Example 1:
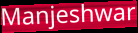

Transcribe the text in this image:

Manjeshwar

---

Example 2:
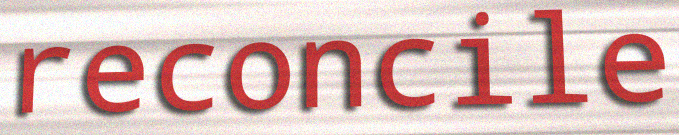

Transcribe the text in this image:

reconcile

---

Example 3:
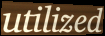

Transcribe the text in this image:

utilized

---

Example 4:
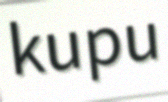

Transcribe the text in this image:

kupu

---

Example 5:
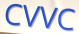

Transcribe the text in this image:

CVVC